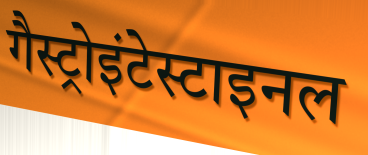
गैस्ट्रोइंटेस्टाइनल